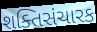
શક્તિસંચારક